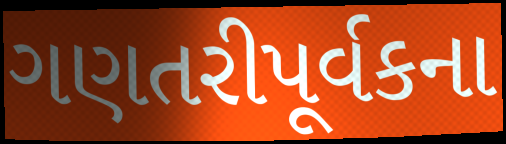
ગણતરીપૂર્વકના